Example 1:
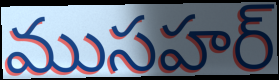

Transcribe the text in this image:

ముసహర్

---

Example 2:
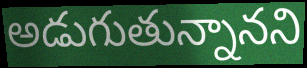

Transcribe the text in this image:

అడుగుతున్నానని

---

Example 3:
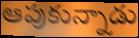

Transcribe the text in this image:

ఆపుకున్నాడు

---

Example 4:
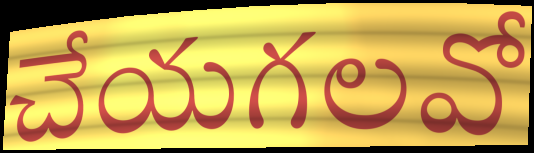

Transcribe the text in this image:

చేయగలవో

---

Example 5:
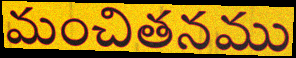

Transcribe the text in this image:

మంచితనము